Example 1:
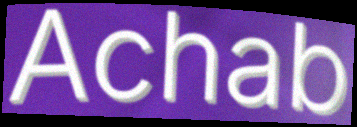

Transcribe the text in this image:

Achab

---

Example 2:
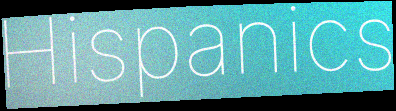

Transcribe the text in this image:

Hispanics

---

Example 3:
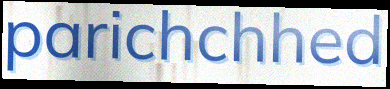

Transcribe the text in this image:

parichchhed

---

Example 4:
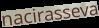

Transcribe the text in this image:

nacirasseva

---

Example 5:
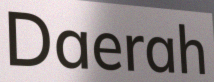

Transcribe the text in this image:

Daerah